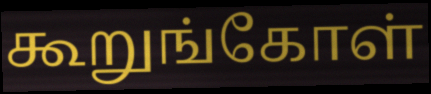
கூறுங்கோள்